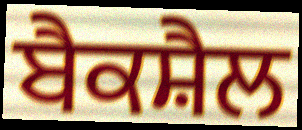
ਬੈਕਸ਼ੈਲ